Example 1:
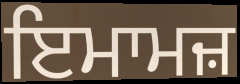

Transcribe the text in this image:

ਇਮਾਮਜ਼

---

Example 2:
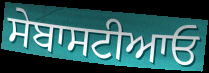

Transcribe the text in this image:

ਸੇਬਾਸਟੀਆਓ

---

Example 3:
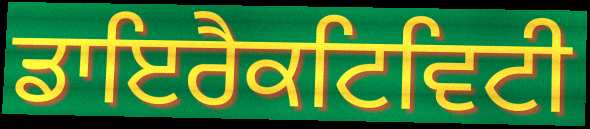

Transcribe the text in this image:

ਡਾਇਰੈਕਟਿਵਿਟੀ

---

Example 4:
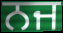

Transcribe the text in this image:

ਨਜ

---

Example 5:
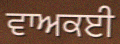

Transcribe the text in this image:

ਵਾਅਕਈ